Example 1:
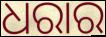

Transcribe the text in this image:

ଧରାର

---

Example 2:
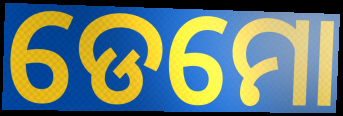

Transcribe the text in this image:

ଡେମୋ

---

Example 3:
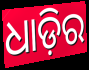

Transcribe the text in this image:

ଧାଡ଼ିର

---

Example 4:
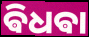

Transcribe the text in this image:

ଵିଧଵା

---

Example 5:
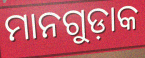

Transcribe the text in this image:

ମାନଗୁଡ଼ାକ